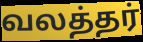
வலத்தர்